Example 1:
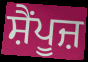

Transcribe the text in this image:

ਸ਼ੈਂਪੂਜ਼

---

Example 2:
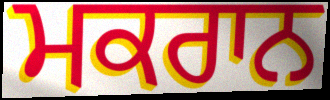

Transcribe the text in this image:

ਮਕਰਾਨ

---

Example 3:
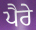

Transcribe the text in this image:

ਪੈਰੇ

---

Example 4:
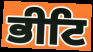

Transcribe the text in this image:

ਭੀਟਿ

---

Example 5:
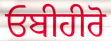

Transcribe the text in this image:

ਓਬੀਹੀਰੋ